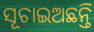
ସୂଚାଇଅଛନ୍ତି